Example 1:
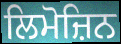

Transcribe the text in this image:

ਲਿਮੋਜ਼ਿਨ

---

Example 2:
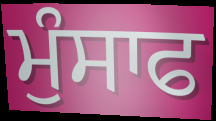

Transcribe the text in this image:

ਮੁੰਸਾਫ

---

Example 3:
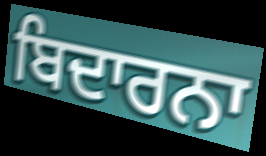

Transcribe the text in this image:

ਬਿਦਾਰਨਾ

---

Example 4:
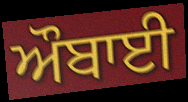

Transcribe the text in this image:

ਔਬਾਈ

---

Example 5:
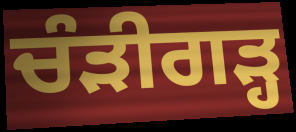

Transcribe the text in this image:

ਚੰੜੀਗੜ੍ਹ